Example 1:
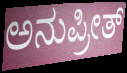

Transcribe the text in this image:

ಅನುಪ್ರೀತ್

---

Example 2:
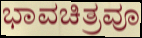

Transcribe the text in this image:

ಭಾವಚಿತ್ರವೂ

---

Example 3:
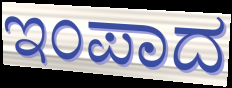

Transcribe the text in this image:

ಇಂಪಾದ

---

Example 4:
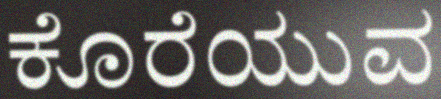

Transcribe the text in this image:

ಕೊರೆಯುವ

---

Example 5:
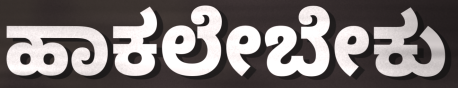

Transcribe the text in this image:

ಹಾಕಲೇಬೇಕು